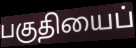
பகுதியைப்